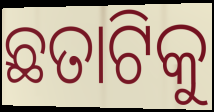
ଛତାଟିକୁ